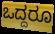
ಒದ್ದರೂ